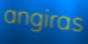
angiras